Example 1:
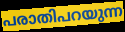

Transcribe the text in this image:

പരാതിപറയുന്ന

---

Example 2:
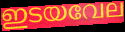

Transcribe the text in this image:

ഇടയവേല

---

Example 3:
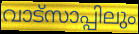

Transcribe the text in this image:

വാട്സാപ്പിലും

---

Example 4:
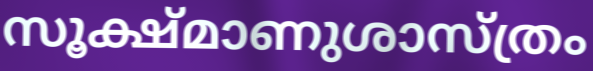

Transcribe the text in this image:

സൂക്ഷ്മാണുശാസ്ത്രം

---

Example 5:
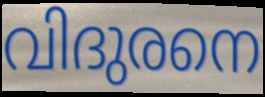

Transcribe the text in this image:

വിദുരനെ